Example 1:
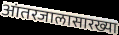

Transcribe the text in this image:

आंतरजालासारख्या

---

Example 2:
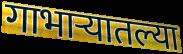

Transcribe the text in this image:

गाभाऱ्यातल्या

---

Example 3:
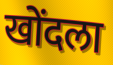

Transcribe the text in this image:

खोंदला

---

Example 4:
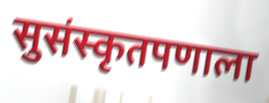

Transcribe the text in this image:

सुसंस्कृतपणाला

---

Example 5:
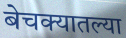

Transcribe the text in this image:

बेचक्यातल्या